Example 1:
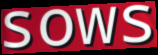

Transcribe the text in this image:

sows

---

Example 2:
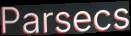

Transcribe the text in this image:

Parsecs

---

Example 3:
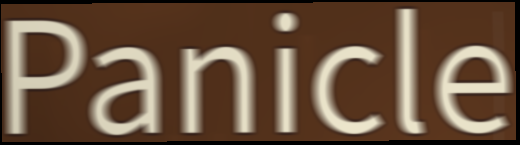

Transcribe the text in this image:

Panicle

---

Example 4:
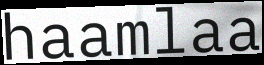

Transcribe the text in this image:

haamlaa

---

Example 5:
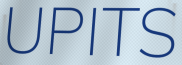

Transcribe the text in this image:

UPITS